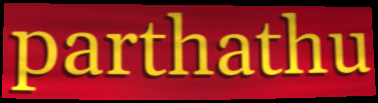
parthathu